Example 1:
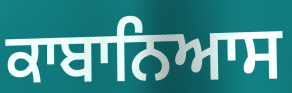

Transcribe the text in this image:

ਕਾਬਾਨਿਆਸ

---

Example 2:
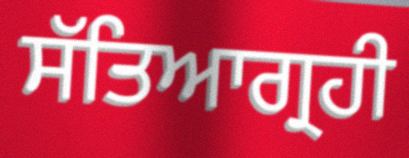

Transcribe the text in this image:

ਸੱਤਿਆਗ੍ਰਹੀ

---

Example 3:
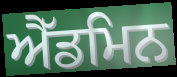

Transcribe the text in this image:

ਐੱਡਮਿਨ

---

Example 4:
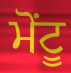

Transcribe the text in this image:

ਮੋਂਟੂ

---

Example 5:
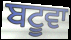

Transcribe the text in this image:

ਬਟੂਵਾ